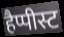
हैप्पीस्ट